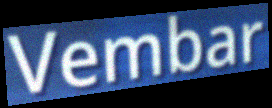
Vembar